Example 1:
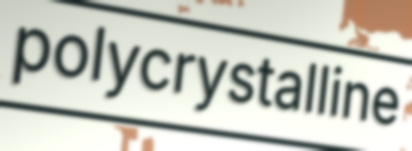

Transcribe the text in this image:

polycrystalline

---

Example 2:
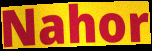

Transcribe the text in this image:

Nahor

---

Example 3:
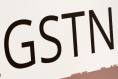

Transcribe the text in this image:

GSTN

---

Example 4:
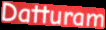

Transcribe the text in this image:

Datturam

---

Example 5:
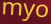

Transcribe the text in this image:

myo